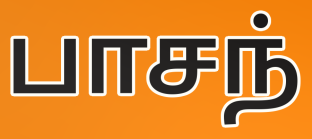
பாசந்